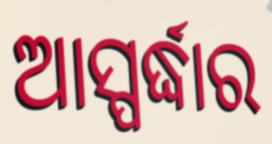
ଆସ୍ପର୍ଦ୍ଧାର